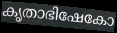
കൃതാഭിഷേകോ